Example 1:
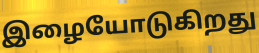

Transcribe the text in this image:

இழையோடுகிறது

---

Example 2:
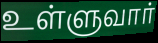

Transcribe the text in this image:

உள்ளுவார்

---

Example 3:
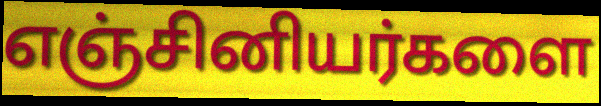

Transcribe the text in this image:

எஞ்சினியர்களை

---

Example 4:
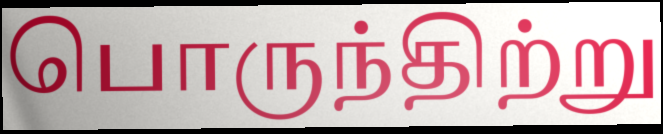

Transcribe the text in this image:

பொருந்திற்று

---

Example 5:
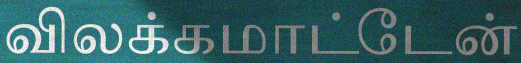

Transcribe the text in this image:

விலக்கமாட்டேன்